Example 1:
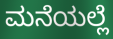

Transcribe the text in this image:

ಮನೆಯಲ್ಲೆ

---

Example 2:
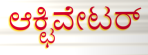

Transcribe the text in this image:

ಆಕ್ಟಿವೇಟರ್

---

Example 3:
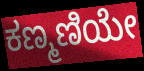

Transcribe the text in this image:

ಕಣ್ಮಣಿಯೇ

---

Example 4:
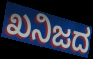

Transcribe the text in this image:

ಖನಿಜದ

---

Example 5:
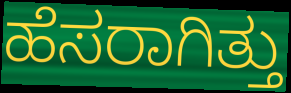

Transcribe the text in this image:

ಹೆಸರಾಗಿತ್ತು